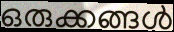
ഒരുക്കങ്ങൾ